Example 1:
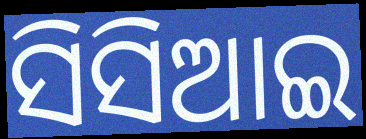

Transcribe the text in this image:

ସିସିଆଇ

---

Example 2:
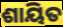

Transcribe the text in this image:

ଶାୟିତ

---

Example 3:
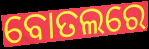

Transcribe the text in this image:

ବୋତଲରେ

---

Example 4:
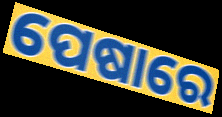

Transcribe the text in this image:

ପେଷାରେ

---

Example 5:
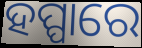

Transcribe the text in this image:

ହପ୍ପାରେ